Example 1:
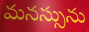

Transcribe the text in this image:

మనస్సును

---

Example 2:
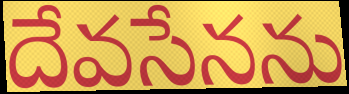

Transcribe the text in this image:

దేవసేనను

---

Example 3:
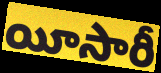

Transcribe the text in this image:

యీసారీ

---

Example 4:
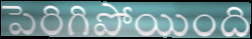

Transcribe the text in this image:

పెరిగిపోయింది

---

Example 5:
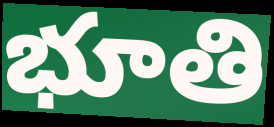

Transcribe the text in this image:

భూతి